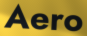
Aero